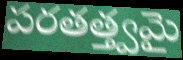
పరతత్త్వమై